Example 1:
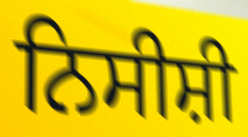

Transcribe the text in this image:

ਨਿਸੀਸ਼ੀ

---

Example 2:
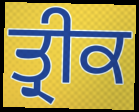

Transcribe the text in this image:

ਤ੍ਰੀਕ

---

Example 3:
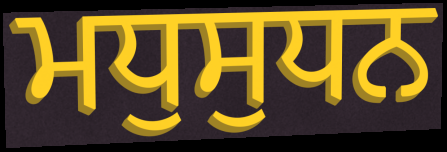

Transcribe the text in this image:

ਮਧੁਸੁਧਨ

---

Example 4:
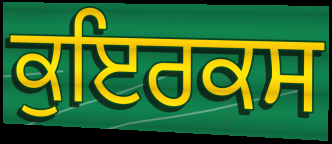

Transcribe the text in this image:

ਕੁਇਰਕਸ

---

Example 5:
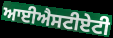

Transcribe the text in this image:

ਆਈਐਸਟੀਏਟੀ